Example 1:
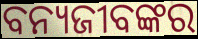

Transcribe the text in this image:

ବନ୍ୟଜୀବଙ୍କର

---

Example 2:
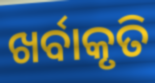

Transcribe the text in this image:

ଖର୍ବାକୃତି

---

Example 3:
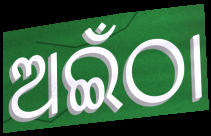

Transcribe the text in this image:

ଅଇଁଠା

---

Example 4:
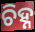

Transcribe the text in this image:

ଚିହ୍ନ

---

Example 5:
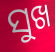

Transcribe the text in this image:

ସୁଖ